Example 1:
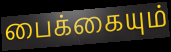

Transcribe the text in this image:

பைக்கையும்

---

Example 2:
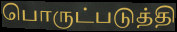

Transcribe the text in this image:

பொருட்படுத்தி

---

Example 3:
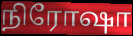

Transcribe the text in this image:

நிரோஷா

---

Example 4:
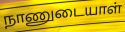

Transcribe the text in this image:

நாணுடையாள்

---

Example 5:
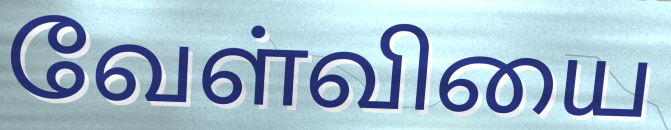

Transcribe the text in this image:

வேள்வியை